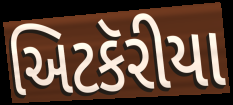
અિટકૅરીયા